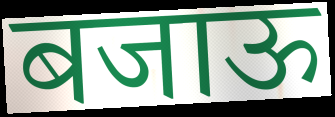
बजाऊ